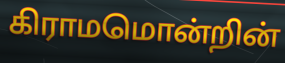
கிராமமொன்றின்